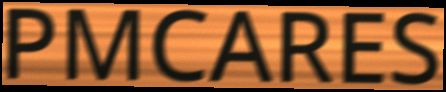
PMCARES